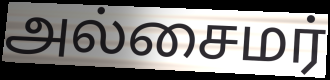
அல்சைமர்